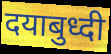
दयाबुध्दी